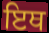
ਇਥ